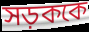
সড়ককে